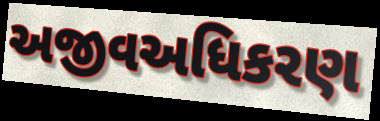
અજીવઅધિકરણ